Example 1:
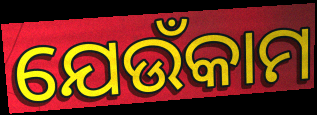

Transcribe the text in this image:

ଯେଉଁକାମ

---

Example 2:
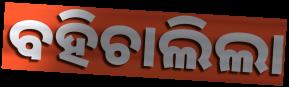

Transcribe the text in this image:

ବହିଚାଲିଲା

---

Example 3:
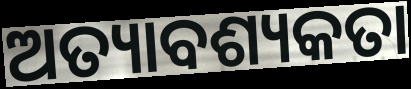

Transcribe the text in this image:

ଅତ୍ୟାବଶ୍ୟକତା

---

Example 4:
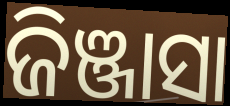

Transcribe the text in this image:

ଜିଞ୍ଜାସା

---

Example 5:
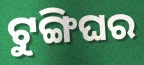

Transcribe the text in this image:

ଟୁଙ୍ଗିଘର